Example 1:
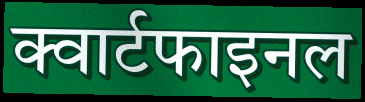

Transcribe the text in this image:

क्वार्टफाइनल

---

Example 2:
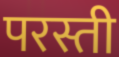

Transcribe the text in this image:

परस्ती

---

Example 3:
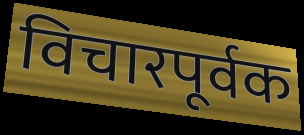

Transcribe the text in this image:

विचारपूर्वक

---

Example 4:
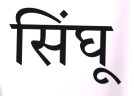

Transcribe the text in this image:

सिंघू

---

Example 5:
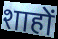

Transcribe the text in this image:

शाहों